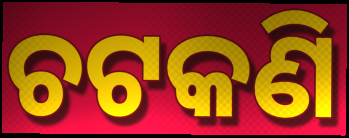
ଚଟକଣି